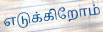
எடுக்கிறோம்